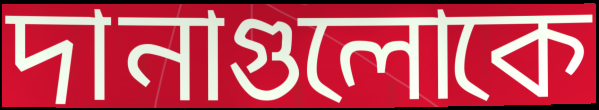
দানাগুলোকে